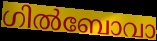
ഗിൽബോവാ